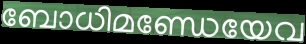
ബോധിമണ്ഡേയേവ